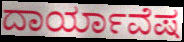
ದಾರ್ಯಾವೆಷ